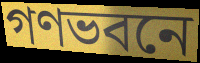
গণভবনে